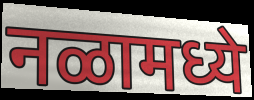
नळामध्ये